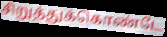
சிறுத்துக்கொண்டே